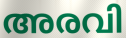
അരവി